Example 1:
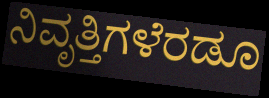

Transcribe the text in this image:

ನಿವೃತ್ತಿಗಳೆರಡೂ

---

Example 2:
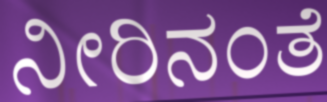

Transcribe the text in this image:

ನೀರಿನಂತೆ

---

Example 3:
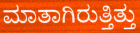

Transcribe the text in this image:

ಮಾತಾಗಿರುತ್ತಿತ್ತು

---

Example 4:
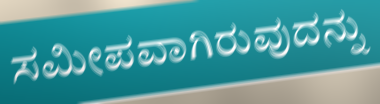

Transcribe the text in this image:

ಸಮೀಪವಾಗಿರುವುದನ್ನು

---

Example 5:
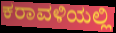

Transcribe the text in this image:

ಕರಾವಳಿಯಲ್ಲಿ